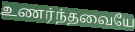
உணர்ந்தவையே